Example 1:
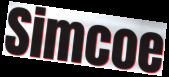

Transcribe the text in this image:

Simcoe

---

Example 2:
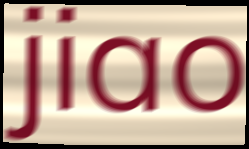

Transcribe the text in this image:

jiao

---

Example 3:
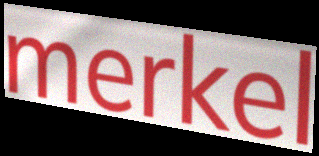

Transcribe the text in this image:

merkel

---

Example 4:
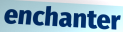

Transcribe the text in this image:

enchanter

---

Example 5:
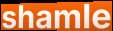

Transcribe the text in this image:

shamle